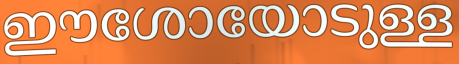
ഈശോയോടുള്ള